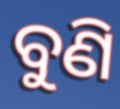
ବୁଣି